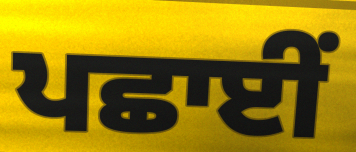
ਪਛਾਈਂ